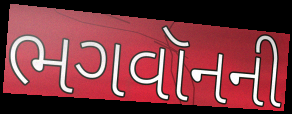
ભગવૉનની